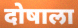
दोषाला